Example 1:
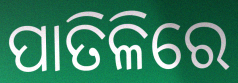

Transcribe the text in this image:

ପାତିଳିରେ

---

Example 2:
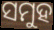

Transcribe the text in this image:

ସମୁହ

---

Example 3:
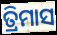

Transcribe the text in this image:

ତ୍ରିମାସ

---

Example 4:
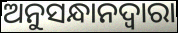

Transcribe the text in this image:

ଅନୁସନ୍ଧାନଦ୍ୱାରା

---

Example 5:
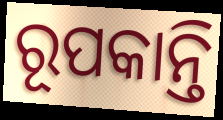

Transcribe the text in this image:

ରୂପକାନ୍ତି